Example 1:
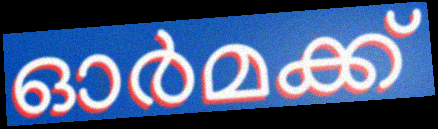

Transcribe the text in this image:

ഓർമക്ക്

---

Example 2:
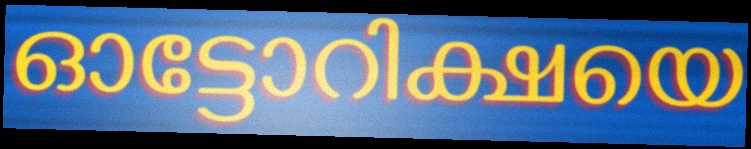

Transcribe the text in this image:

ഓട്ടോറിക്ഷയെ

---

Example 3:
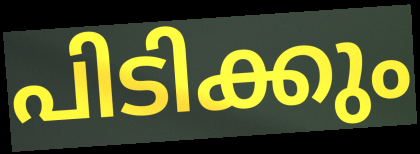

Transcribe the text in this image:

പിടിക്കും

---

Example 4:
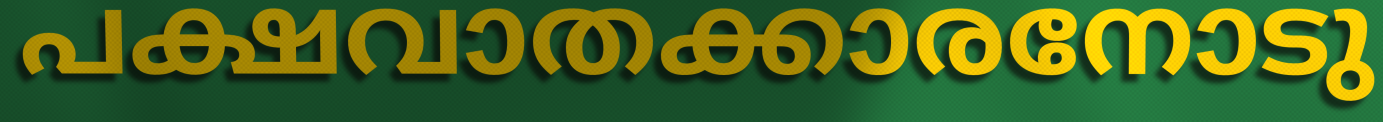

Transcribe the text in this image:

പക്ഷവാതക്കാരനോടു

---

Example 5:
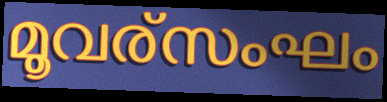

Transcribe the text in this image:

മൂവര്സംഘം